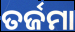
ତର୍ଜମା